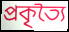
প্রকৃত্যৈ